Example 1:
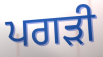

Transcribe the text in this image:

ਪਗੜੀ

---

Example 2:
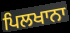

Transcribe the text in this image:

ਪਿਲਖਾਨਾ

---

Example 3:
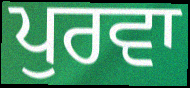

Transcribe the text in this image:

ਪੁਰਵਾ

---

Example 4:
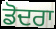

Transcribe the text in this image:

ਡੋਦਰਾ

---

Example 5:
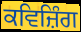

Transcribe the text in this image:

ਕਵਿਜ਼ਿੰਗ